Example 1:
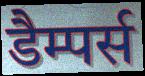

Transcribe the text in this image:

डैम्पर्स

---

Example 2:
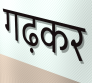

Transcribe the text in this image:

गढ़कर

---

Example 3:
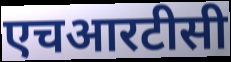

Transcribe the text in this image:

एचआरटीसी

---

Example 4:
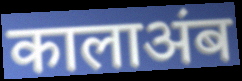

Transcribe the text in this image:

कालाअंब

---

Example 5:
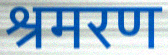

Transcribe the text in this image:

श्रमरण